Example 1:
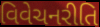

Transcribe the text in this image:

વિવેચનરીતિ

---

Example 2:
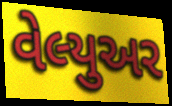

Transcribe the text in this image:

વેલ્યુઅર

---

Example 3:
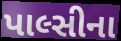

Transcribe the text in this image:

પાલ્સીના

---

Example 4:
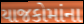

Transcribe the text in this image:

યાજકોમાંના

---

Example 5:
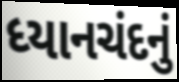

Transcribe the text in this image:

ધ્યાનચંદનું